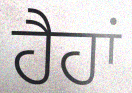
ਹੈਹਾਂ